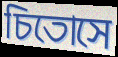
চিতোসে